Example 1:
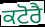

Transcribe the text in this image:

ਕਟੋਰੈ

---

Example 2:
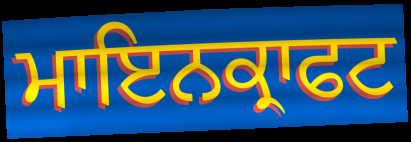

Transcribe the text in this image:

ਮਾਇਨਕ੍ਰਾਫਟ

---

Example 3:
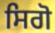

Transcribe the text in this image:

ਸਿਗੋ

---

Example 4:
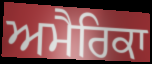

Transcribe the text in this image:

ਅਮੈਰਿਕਾ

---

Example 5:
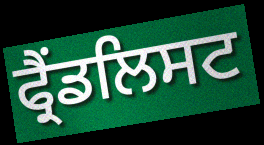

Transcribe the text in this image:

ਫ੍ਰੈਂਡਲਿਸਟ